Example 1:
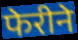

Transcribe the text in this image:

फेरीने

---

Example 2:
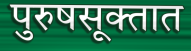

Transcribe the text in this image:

पुरुषसूक्तात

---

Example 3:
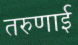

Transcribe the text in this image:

तरुणाई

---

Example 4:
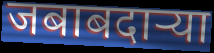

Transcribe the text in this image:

जबाबदाऱ्या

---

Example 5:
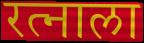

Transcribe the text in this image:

रत्नाला